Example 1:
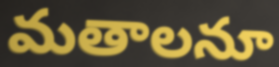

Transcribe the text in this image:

మతాలనూ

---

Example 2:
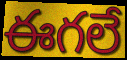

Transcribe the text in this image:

ఈగలే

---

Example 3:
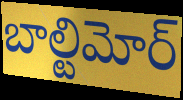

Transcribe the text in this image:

బాల్టిమోర్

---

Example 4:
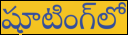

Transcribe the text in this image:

షూటింగ్‌లో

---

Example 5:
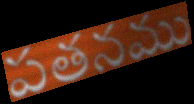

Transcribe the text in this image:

పతనము